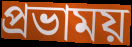
প্রভাময়